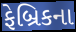
ફેબ્રિકના